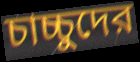
চাচ্চুদের